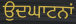
ਉਦਘਾਟਨਾਂ